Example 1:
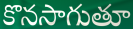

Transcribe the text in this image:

కొనసాగుతూ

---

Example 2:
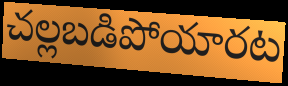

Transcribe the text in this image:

చల్లబడిపోయారట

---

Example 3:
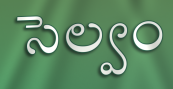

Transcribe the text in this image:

సెల్వం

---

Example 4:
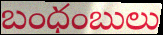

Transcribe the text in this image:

బంధంబులు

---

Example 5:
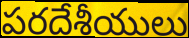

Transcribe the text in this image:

పరదేశీయులు